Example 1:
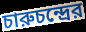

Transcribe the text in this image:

চারুচন্দ্রের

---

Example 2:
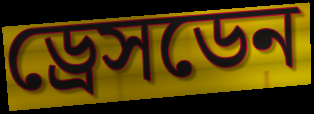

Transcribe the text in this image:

ড্রেসডেন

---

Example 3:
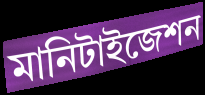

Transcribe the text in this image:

মানিটাইজেশন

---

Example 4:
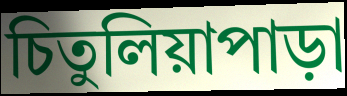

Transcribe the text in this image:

চিতুলিয়াপাড়া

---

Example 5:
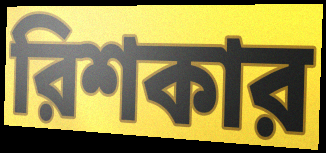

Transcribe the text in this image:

রিশকার